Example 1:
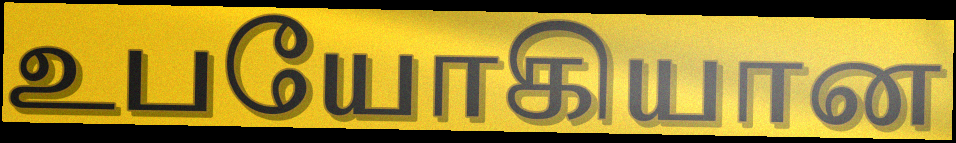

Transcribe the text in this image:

உபயோகியான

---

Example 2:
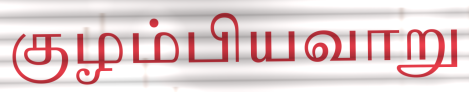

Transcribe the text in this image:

குழம்பியவாறு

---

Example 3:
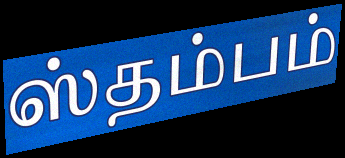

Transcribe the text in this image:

ஸ்தம்பம்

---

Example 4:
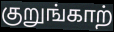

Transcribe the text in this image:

குறுங்காற்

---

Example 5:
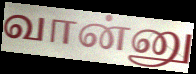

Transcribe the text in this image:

வான்னு